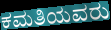
ಕಮತಿಯವರು